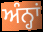
ਅੰਨ੍ਹਾਂ